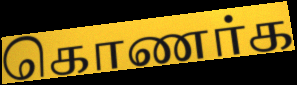
கொணர்க